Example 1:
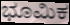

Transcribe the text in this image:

ಭೂಮಿಕ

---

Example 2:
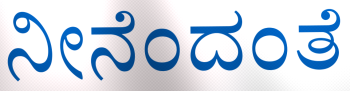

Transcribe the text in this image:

ನೀನೆಂದಂತೆ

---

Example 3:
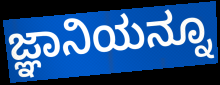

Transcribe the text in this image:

ಜ್ಞಾನಿಯನ್ನೂ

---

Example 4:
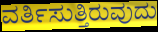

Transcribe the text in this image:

ವರ್ತಿಸುತ್ತಿರುವುದು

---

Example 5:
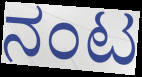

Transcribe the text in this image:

ನಂಟ